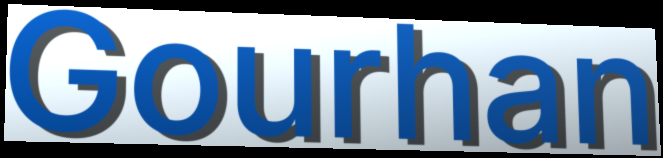
Gourhan